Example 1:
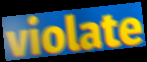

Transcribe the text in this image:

violate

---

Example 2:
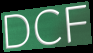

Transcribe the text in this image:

DCF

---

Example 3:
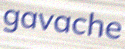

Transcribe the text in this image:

gavache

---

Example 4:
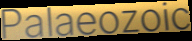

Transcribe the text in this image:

Palaeozoic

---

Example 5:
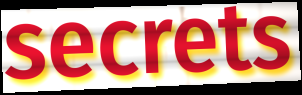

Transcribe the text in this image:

secrets